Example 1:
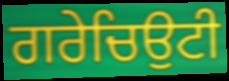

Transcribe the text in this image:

ਗਰੇਚਿਉਟੀ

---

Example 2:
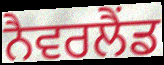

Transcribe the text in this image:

ਨੈਵਰਲੈਂਡ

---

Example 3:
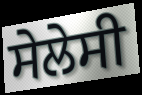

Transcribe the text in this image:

ਸੇਲੇਸੀ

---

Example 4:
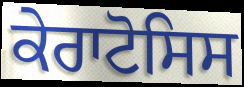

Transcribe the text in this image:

ਕੇਰਾਟੋਸਿਸ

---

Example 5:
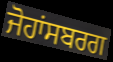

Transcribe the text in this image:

ਜੋਹਾਂਸਬਰਗ